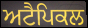
ਅਟੈਪਿਕਲ